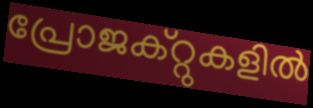
പ്രോജക്റ്റുകളിൽ